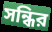
সন্ধির